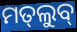
ମତ୍‌ଲୁବ୍